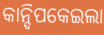
କାନ୍ଦିପକେଇଲା